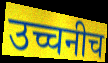
उच्चनीच